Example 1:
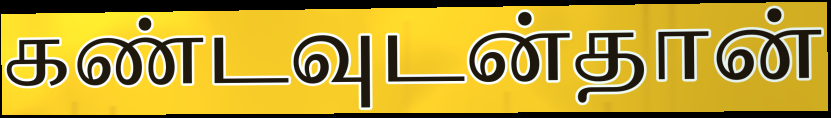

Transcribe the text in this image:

கண்டவுடன்தான்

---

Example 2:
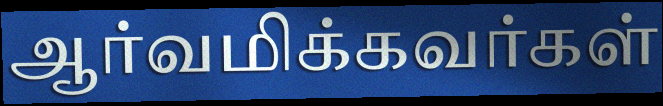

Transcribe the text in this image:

ஆர்வமிக்கவர்கள்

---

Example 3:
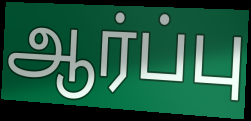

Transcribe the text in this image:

ஆர்ப்பு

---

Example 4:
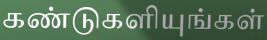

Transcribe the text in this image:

கண்டுகளியுங்கள்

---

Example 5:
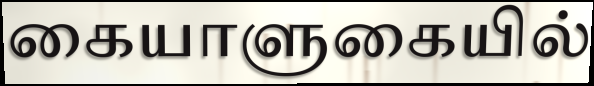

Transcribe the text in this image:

கையாளுகையில்